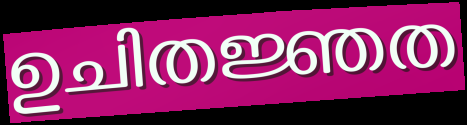
ഉചിതജ്ഞത